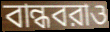
বান্ধবরাও